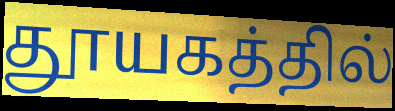
தூயகத்தில்